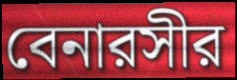
বেনারসীর